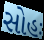
સોહઃ